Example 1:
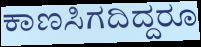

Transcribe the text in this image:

ಕಾಣಸಿಗದಿದ್ದರೂ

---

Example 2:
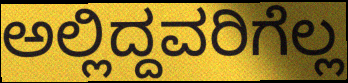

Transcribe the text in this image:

ಅಲ್ಲಿದ್ದವರಿಗೆಲ್ಲ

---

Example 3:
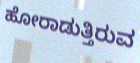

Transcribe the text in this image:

ಹೋರಾಡುತ್ತಿರುವ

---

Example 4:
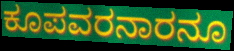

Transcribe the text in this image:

ಕೂಪವರನಾರನೂ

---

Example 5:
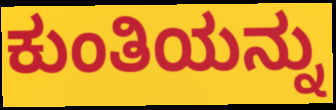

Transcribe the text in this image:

ಕುಂತಿಯನ್ನು